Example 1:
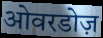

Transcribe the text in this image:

ओवरडोज़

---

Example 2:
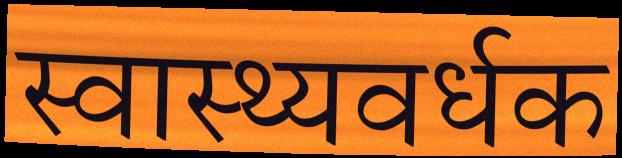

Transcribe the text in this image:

स्वास्थ्यवर्धक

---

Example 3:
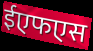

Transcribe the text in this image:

ईएफएस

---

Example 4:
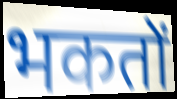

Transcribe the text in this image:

भकतों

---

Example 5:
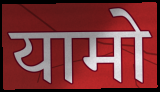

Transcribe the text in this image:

यामो